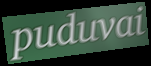
puduvai